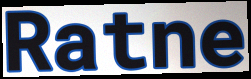
Ratne